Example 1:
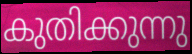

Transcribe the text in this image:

കുതിക്കുന്നു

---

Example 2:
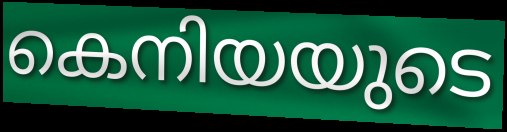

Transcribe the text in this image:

കെനിയയുടെ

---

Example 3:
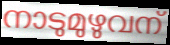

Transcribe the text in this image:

നാടുമുഴുവന്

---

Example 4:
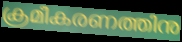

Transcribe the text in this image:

ക്രമീകരണത്തിനു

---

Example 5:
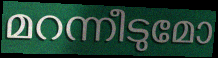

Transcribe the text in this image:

മറന്നീടുമോ